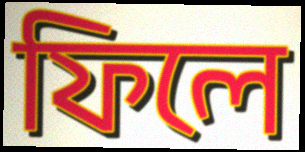
ফিলে